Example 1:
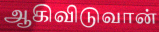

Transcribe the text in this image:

ஆகிவிடுவான்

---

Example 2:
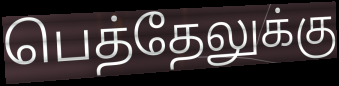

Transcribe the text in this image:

பெத்தேலுக்கு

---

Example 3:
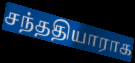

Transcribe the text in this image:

சந்ததியாராக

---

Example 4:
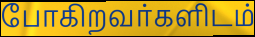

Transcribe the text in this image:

போகிறவர்களிடம்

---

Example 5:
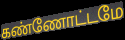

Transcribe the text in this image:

கண்ணோட்டமே